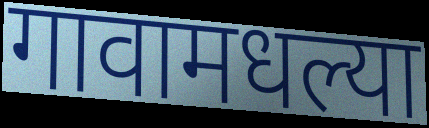
गावामधल्या